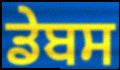
ਡੇਬਸ